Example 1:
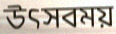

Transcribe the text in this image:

উৎসবময়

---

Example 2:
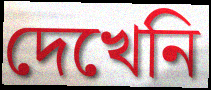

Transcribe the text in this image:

দেখেনি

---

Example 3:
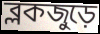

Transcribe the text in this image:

ব্লকজুড়ে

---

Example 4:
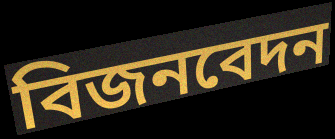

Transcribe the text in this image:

বিজনবেদন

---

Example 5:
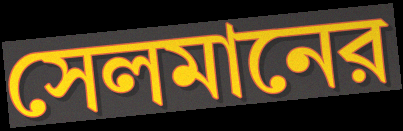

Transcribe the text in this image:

সেলমানের